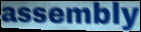
assembly